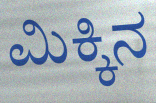
ಮಿಕ್ಕಿನ